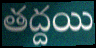
తద్దయి